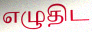
எழுதிட